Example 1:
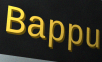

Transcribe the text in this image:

Bappu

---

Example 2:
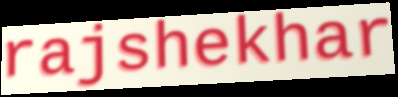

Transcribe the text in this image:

rajshekhar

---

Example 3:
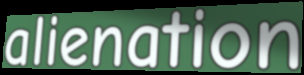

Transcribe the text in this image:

alienation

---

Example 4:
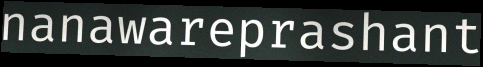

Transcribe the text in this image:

nanawareprashant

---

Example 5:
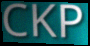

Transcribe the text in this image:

CKP